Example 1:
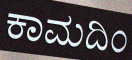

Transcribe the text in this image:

ಕಾಮದಿಂ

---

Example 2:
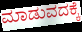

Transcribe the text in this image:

ಮಾಡುವದಕ್ಕೆ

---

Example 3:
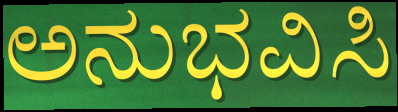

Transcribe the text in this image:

ಅನುಭವಿಸಿ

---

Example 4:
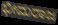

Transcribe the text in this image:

ಭೀಮರಾಜ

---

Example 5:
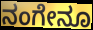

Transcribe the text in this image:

ನಂಗೇನೂ